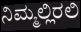
ನಿಮ್ಮಲ್ಲಿರಲಿ